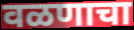
वळणाचा